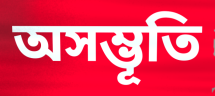
অসম্ভূতি